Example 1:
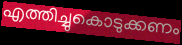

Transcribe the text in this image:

എത്തിച്ചുകൊടുക്കണം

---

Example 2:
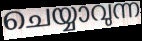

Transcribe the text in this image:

ചെയ്യാവുന്ന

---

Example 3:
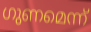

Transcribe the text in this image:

ഗുണമെന്ന്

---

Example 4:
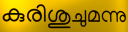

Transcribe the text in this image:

കുരിശുചുമന്നു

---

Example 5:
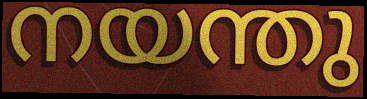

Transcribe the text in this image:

നയന്തു